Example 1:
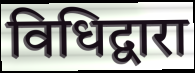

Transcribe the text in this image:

विधिद्वारा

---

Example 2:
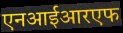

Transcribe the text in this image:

एनआईआरएफ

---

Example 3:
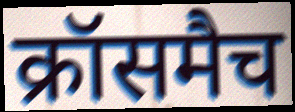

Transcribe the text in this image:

क्रॉसमैच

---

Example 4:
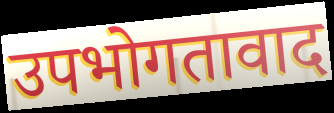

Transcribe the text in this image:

उपभोगतावाद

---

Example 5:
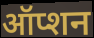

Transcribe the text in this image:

ऑप्शन